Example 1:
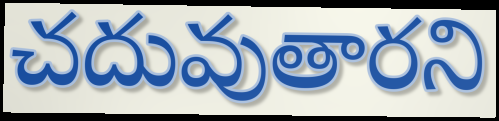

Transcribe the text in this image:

చదువుతారని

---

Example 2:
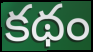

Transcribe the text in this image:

కథం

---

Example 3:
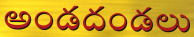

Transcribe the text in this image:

అండదండలు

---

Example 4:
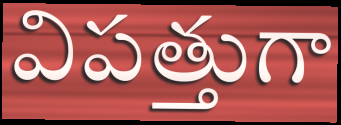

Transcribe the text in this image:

విపత్తుగా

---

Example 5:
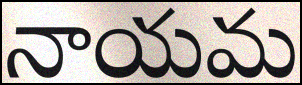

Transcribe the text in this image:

నాయమ